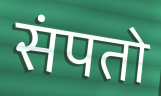
संपतो